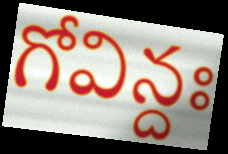
గోవిన్దః